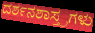
ದರ್ಶನಶಾಸ್ತ್ರಗಳು